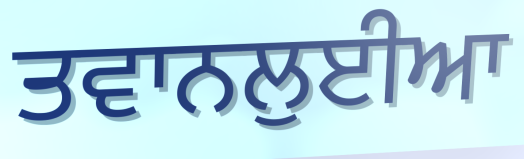
ਤਵਾਨਲੁਈਆ